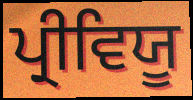
ਪ੍ਰੀਵਿਯੂ